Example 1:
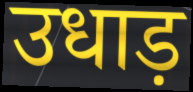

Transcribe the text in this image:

उधाड़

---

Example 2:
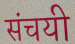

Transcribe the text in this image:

संचयी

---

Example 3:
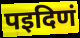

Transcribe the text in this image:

पइदिणं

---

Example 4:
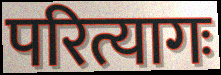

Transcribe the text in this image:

परित्यागः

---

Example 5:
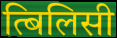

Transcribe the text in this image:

त्बिलिसी